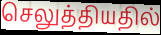
செலுத்தியதில்